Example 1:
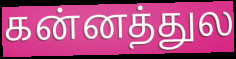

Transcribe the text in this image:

கன்னத்துல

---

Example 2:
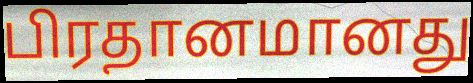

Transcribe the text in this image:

பிரதானமானது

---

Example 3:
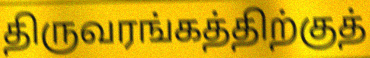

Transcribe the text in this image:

திருவரங்கத்திற்குத்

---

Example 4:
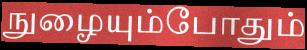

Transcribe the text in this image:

நுழையும்போதும்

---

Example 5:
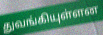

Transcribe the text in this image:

துவங்கியுள்ளன